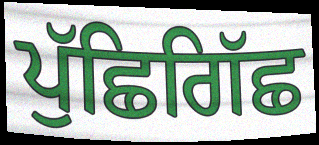
ਪੁੱਛਿਗਿੱਛ